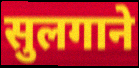
सुलगाने